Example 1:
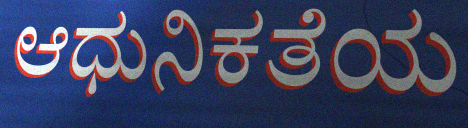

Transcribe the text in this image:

ಆಧುನಿಕತೆಯ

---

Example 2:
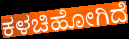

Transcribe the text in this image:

ಕಳಚಿಹೋಗಿದೆ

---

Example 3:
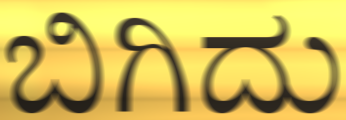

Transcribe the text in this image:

ಬಿಗಿದು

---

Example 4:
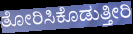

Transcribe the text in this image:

ತೋರಿಸಿಕೊಡುತ್ತೀರಿ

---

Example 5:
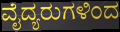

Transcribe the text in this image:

ವೈದ್ಯರುಗಳಿಂದ